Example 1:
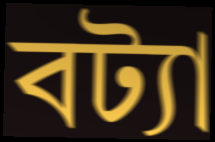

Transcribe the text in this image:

বট্যা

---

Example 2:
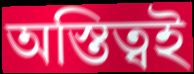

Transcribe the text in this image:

অস্তিত্বই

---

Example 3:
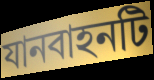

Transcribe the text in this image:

যানবাহনটি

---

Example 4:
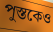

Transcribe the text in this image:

পুস্তকেও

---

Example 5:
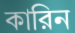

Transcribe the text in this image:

কারিন